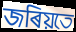
জৰিয়তে